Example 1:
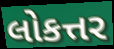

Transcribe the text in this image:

લોકત્તર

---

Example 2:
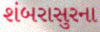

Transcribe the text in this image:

શંબરાસુરના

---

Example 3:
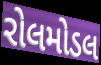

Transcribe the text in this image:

રોલમોડલ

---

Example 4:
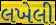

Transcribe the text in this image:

લખેલી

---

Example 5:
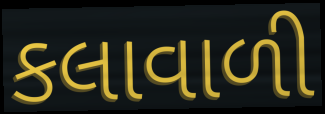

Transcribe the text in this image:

કલાવાળી